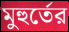
মুহুর্তের